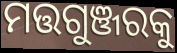
ମତ୍ତଗୁଞ୍ଜରକୁ